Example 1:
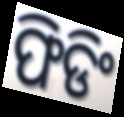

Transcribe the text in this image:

ଫିଡିଂ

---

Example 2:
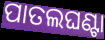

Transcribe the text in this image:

ପାତଲଘଣ୍ଟା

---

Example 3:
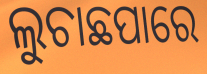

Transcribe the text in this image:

ଲୁଚାଛପାରେ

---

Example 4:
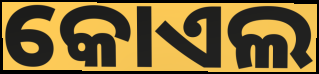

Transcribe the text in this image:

କୋଏଲ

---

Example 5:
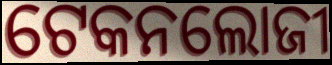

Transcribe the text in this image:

ଟେକନଲୋଜୀ